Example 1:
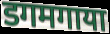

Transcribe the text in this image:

डगमगाया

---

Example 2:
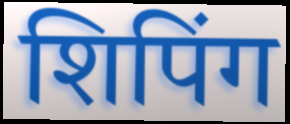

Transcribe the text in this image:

शिपिंग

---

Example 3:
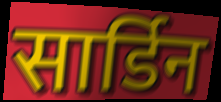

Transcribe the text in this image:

सार्डिन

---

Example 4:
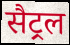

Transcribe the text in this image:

सैट्रल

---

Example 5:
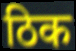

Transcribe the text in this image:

ठिक